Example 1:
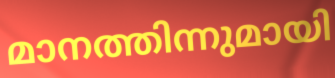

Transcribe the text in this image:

മാനത്തിന്നുമായി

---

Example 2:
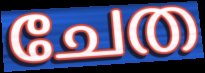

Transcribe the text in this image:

ചേത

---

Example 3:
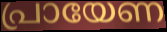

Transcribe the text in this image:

പ്രായേണ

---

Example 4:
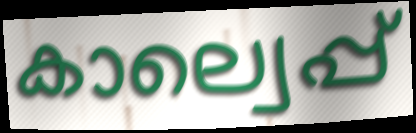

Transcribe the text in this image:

കാല്വെപ്പ്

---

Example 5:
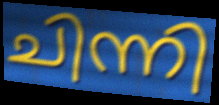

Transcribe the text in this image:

ചിന്നി